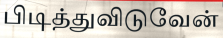
பிடித்துவிடுவேன்